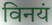
विनयं